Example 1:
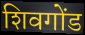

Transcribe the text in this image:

शिवगोंड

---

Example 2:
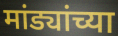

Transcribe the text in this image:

मांड्यांच्या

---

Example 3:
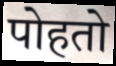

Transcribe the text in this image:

पोहतो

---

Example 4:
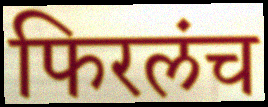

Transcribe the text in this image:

फिरलंच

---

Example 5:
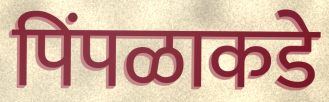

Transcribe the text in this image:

पिंपळाकडे